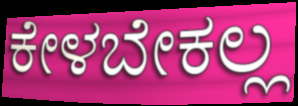
ಕೇಳಬೇಕಲ್ಲ